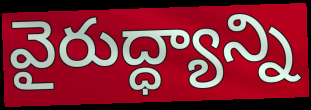
వైరుద్ధ్యాన్ని